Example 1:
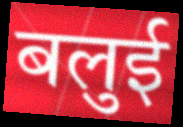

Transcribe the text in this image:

बलुई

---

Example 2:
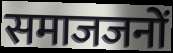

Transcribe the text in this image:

समाजजनों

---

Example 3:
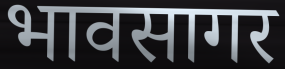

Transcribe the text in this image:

भावसागर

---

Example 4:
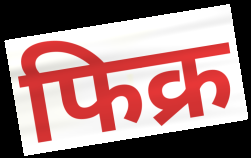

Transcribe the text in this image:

फिक्र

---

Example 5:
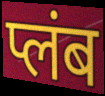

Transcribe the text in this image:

प्लंब